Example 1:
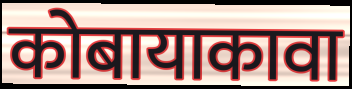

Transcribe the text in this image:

कोबायाकावा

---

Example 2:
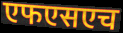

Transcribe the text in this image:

एफएसएच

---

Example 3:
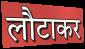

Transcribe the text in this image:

लौटाकर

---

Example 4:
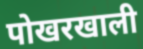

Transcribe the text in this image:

पोखरखाली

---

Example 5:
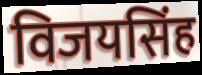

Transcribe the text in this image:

विजयसिंह